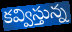
కవ్విస్తున్న